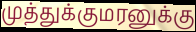
முத்துக்குமரனுக்கு